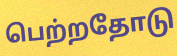
பெற்றதோடு